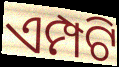
ଏମ୍ପଟି